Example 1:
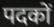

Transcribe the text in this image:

पदकों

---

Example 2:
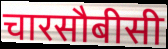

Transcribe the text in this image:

चारसौबीसी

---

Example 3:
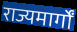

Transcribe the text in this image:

राज्यमार्गों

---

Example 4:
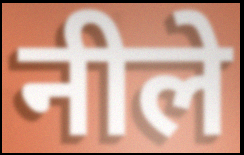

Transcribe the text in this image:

नीले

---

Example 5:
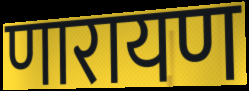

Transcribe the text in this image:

णारायण